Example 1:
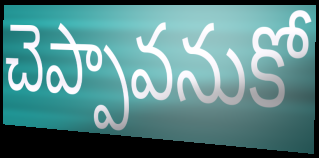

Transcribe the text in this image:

చెప్పావనుకో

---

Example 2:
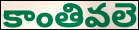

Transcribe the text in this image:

కాంతివలె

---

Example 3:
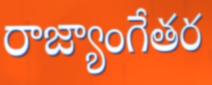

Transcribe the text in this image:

రాజ్యాంగేతర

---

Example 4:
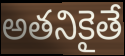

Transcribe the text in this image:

అతనికైతే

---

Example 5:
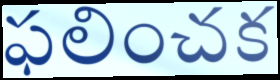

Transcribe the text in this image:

ఫలించక